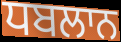
ਧਬਲਾਨ